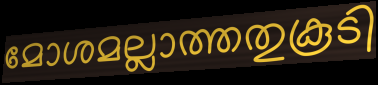
മോശമല്ലാത്തതുകൂടി